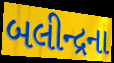
બલીન્દ્રના